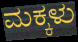
ಮಕ್ಕಳು